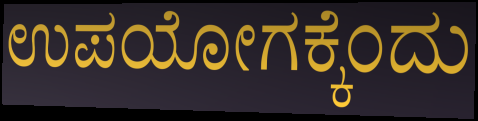
ಉಪಯೋಗಕ್ಕೆಂದು